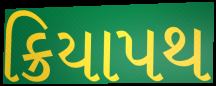
ક્રિયાપથ